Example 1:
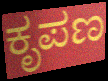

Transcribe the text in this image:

ಕೃಪಣ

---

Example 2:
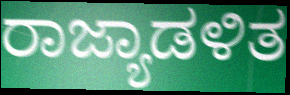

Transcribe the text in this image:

ರಾಜ್ಯಾಡಳಿತ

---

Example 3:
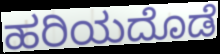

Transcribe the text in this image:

ಹರಿಯದೊಡೆ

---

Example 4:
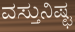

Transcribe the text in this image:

ವಸ್ತುನಿಷ್ಟ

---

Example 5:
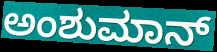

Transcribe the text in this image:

ಅಂಶುಮಾನ್